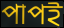
পাপই